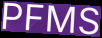
PFMS